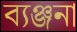
ব্যঞ্জনা